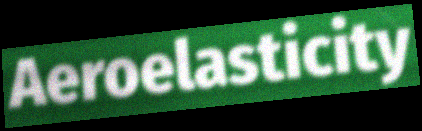
Aeroelasticity